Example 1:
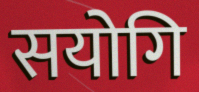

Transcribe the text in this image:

सयोगि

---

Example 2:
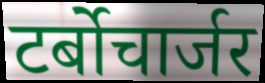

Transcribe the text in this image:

टर्बोचार्जर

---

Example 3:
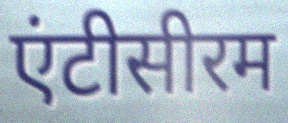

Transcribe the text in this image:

एंटीसीरम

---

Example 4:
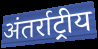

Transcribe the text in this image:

अंतर्राट्रीय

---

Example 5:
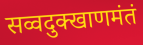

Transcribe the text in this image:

सव्वदुक्खाणमंतं